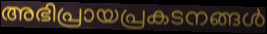
അഭിപ്രായപ്രകടനങ്ങൾ